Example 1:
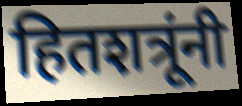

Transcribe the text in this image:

हितशत्रूंनी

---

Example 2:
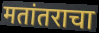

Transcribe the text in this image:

मतांतराचा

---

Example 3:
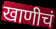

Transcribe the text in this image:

खाणीचं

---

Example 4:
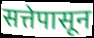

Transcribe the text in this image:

सत्तेपासून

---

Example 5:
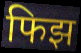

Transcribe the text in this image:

फिझ